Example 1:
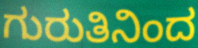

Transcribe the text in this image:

ಗುರುತಿನಿಂದ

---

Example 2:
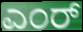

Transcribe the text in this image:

ಎಂರ್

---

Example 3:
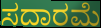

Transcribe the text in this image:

ಸದಾರಮೆ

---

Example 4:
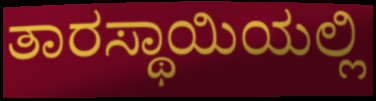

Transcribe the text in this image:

ತಾರಸ್ಥಾಯಿಯಲ್ಲಿ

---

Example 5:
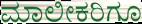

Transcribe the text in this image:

ಮಾಲೀಕರಿಗೂ